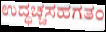
ಉದ್ಧಚ್ಚಸಹಗತಂ